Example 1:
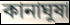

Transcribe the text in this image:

কানাঘুষা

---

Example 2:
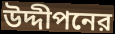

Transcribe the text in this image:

উদ্দীপনের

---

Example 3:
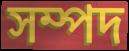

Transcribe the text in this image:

সম্পদ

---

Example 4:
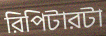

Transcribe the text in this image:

রিপিটারটা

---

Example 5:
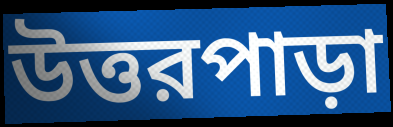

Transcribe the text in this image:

উত্তরপাড়া